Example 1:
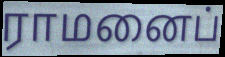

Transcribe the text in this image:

ராமனைப்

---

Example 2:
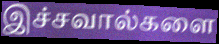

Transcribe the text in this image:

இச்சவால்களை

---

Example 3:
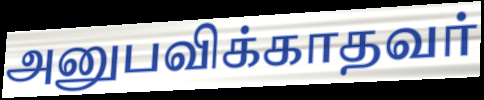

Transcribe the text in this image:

அனுபவிக்காதவர்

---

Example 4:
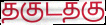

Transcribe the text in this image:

தகுடதகு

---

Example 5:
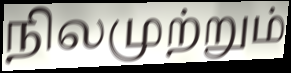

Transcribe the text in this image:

நிலமுற்றும்